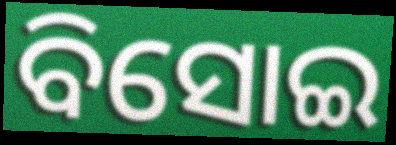
ବିସୋଇ